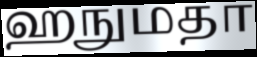
ஹநுமதா